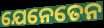
ଯେନେତେନ